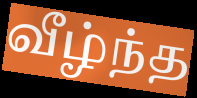
வீழ்ந்த